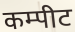
कम्पीट